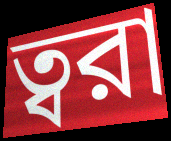
ত্বরা